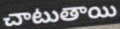
చాటుతాయి